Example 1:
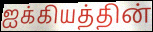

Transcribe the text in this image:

ஐக்கியத்தின்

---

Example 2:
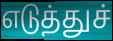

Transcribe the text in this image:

எடுத்துச்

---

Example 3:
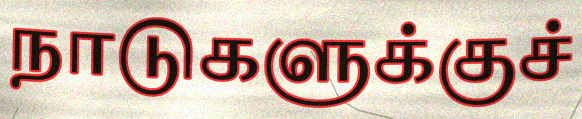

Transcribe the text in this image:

நாடுகளுக்குச்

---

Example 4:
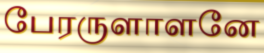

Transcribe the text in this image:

பேரருளாளனே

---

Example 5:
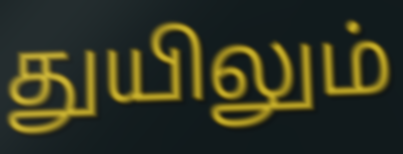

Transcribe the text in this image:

துயிலும்